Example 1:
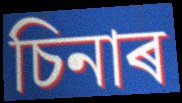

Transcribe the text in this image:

চিনাৰ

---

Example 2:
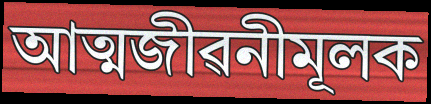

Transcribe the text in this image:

আত্মজীৱনীমূলক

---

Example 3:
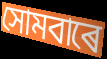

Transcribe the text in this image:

সোমবাৰে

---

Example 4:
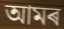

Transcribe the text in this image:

আমৰ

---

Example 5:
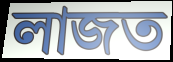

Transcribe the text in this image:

লাজত